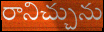
రానిచ్చును